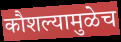
कौशल्यामुळेच